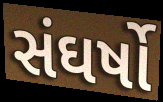
સંઘર્ષો